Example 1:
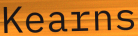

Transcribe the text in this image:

Kearns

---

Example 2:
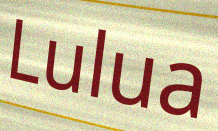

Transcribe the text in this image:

Lulua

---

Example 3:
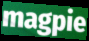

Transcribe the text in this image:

magpie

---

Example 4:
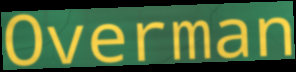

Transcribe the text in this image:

Overman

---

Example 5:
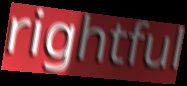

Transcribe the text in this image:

rightful